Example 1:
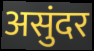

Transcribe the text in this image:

असुंदर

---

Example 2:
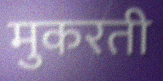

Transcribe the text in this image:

मुकरती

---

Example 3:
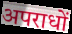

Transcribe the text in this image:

अपराधों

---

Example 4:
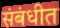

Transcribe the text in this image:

संबंधीत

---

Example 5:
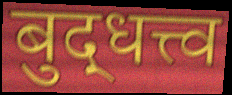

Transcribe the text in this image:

बुद्धत्त्व